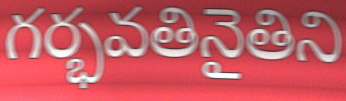
గర్భవతినైతిని